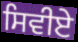
ਸਿਵੀਏ